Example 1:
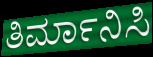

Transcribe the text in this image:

ತಿರ್ಮಾನಿಸಿ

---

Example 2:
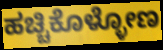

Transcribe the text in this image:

ಹಚ್ಚಿಕೊಳ್ಳೋಣ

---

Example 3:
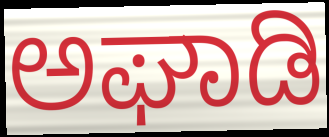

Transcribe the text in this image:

ಅಘಾಡಿ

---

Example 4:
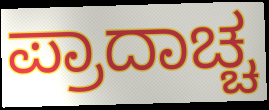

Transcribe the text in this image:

ಪ್ರಾದಾಚ್ಚ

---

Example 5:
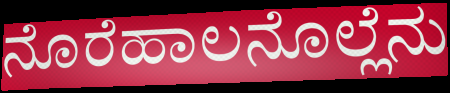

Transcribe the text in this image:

ನೊರೆಹಾಲನೊಲ್ಲೆನು